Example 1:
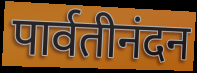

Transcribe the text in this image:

पार्वतीनंदन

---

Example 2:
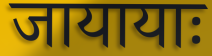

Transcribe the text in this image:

जायायाः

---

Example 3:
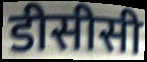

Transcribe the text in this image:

डीसीसी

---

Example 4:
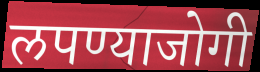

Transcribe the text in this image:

लपण्याजोगी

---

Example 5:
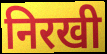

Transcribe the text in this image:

निरखी